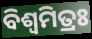
ବିଶ୍ବମିତ୍ରଃ